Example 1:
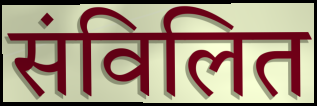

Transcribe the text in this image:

संविलित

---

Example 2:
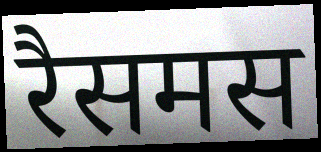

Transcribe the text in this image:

रैसमस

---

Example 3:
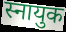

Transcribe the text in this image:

स्नायुक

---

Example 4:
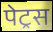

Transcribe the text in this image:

पेट्रस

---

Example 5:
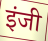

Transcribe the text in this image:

इंजी